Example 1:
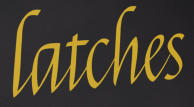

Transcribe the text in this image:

latches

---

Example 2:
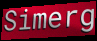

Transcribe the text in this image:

Simerg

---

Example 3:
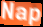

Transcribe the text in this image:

Nap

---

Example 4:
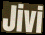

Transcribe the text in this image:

Jivi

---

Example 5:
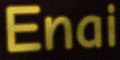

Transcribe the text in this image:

Enai